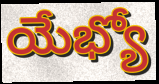
యేభ్యో